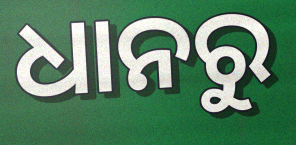
ଧାନରୁ